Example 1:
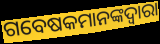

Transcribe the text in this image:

ଗବେଷକମାନଙ୍କଦ୍ୱାରା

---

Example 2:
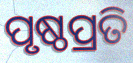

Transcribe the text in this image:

ପୃଷ୍ଠପ୍ରତି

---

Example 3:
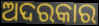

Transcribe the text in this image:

ଅଦରକାର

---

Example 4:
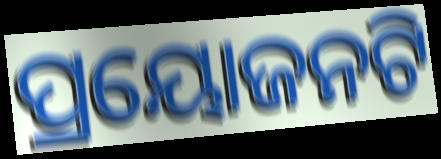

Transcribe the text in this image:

ପ୍ରୟୋଜନଟି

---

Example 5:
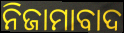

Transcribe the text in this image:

ନିଜାମାବାଦ